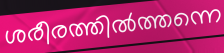
ശരീരത്തിൽത്തന്നെ